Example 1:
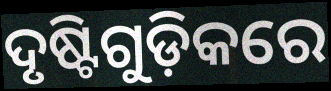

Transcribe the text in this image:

ଦୃଷ୍ଟିଗୁଡ଼ିକରେ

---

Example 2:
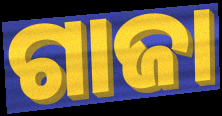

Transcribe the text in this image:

ଗାଜା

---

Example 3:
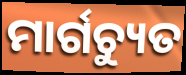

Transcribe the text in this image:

ମାର୍ଗଚ୍ୟୁତ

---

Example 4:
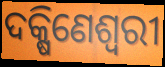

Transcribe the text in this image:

ଦକ୍ଷିଣେଶ୍ଵରୀ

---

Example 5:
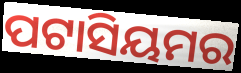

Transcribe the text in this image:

ପଟାସିୟମର